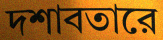
দশাবতারে